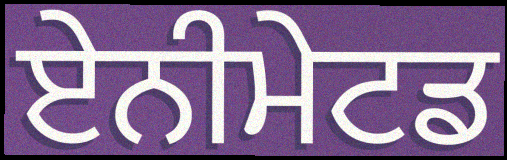
ਏਨੀਮੇਟਡ